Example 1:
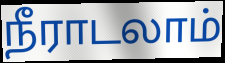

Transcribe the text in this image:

நீராடலாம்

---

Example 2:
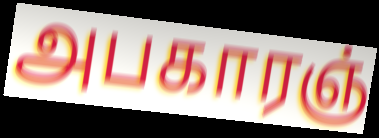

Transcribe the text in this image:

அபகாரஞ்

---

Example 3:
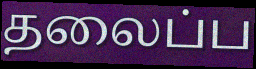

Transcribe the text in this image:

தலைப்ப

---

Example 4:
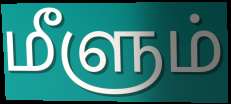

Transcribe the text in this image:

மீளும்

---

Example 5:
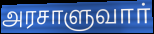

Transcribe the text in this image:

அரசாளுவார்